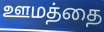
ஊமத்தை